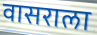
वासराला